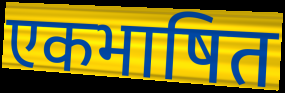
एकभाषित